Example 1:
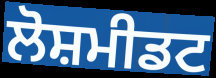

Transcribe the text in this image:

ਲੋਸ਼ਮੀਡਟ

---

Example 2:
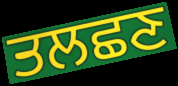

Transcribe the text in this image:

ਤਲਛਣ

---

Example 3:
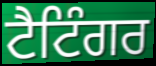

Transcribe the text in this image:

ਟੈਟਿੰਗਰ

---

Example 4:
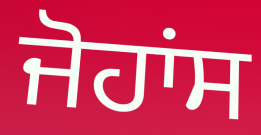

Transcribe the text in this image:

ਜੋਹਾਂਸ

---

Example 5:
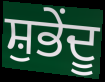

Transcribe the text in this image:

ਸ਼ੁਭੇਂਦੂ